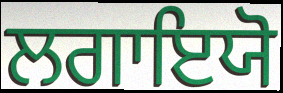
ਲਗਾਇਯੋ